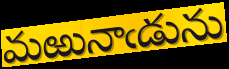
మఱునాఁడును